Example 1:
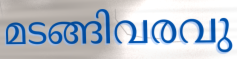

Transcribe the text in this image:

മടങ്ങിവരവു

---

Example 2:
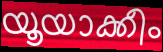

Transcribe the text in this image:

യൂയാക്കീം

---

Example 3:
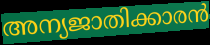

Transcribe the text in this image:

അന്യജാതിക്കാരൻ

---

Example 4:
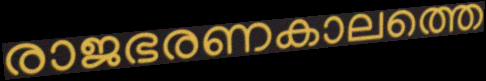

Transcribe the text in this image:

രാജഭരണകാലത്തെ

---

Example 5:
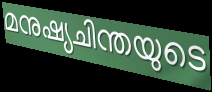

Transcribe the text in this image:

മനുഷ്യചിന്തയുടെ